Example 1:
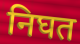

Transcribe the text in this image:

निघत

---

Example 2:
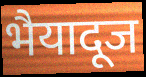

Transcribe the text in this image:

भैयादूज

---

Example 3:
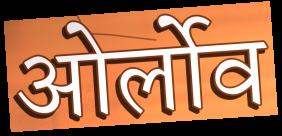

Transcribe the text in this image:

ओर्लोव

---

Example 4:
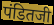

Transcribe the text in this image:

पंडितजी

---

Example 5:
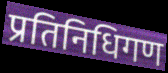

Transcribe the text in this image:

प्रतिनिधिगण